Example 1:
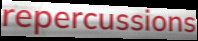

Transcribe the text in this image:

repercussions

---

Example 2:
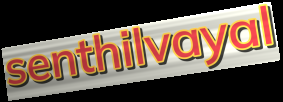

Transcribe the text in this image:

senthilvayal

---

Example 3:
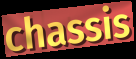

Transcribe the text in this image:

chassis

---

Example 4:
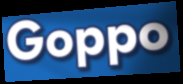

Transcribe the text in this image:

Goppo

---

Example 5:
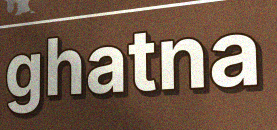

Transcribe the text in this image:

ghatna